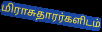
மிராசுதாரர்களிடம்